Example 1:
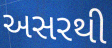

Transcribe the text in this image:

અસરથી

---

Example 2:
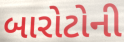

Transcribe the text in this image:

બારોટોની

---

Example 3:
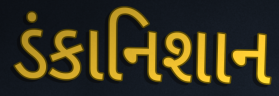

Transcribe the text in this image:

ડંકાનિશાન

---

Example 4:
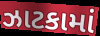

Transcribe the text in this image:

ઝાટકામાં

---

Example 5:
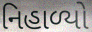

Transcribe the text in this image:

નિહાળ્યો